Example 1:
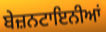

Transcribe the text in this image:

ਬੇਜ਼ਨਟਾਇਨੀਆਂ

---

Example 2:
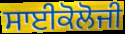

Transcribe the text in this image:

ਸਾਈਕੋਲੋਜੀ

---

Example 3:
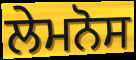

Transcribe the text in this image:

ਲੇਮਨੋਸ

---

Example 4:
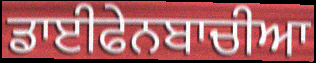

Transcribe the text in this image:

ਡਾਈਫੇਨਬਾਚੀਆ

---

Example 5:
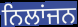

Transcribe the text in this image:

ਨਿਲਾਂਜਨ